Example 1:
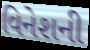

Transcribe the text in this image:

વિનેશની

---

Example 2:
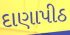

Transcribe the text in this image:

દાણાપીઠ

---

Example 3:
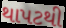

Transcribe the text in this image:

થાપટથી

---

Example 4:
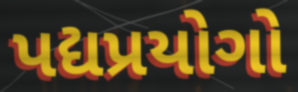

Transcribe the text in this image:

પદ્યપ્રયોગો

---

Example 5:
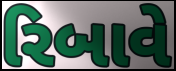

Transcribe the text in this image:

રિબાવે